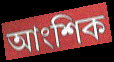
আংশিক